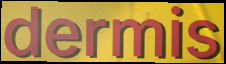
dermis